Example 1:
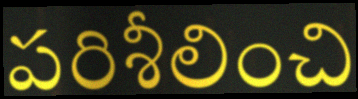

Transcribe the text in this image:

పరిశీలించి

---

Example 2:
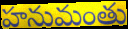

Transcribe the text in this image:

హనుమంతు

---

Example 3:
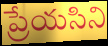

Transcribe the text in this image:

ప్రేయసిని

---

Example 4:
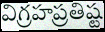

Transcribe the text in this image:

విగ్రహప్రతిష్ట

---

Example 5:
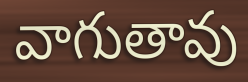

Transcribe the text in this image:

వాగుతావు